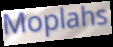
Moplahs